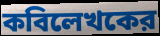
কবিলেখকের